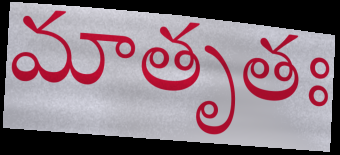
మాతృతః